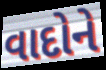
વાદોને